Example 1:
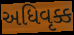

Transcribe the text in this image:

અધિવૃક્ક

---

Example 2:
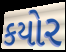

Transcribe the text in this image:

કયોર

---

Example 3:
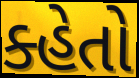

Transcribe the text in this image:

ક્હેતો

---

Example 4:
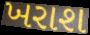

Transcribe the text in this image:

ખરાશ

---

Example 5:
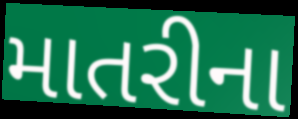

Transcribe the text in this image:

માતરીના